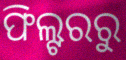
ଫିଲ୍ଟରରୁ